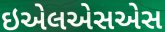
ઇએલએસએસ